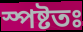
স্পষ্টতঃ